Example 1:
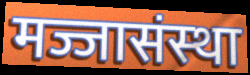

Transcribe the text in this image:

मज्जासंस्था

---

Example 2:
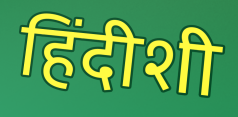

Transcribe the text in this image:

हिंदीशी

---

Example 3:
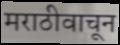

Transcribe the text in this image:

मराठीवाचून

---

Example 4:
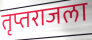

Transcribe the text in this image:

तृप्तराजला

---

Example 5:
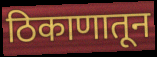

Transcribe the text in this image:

ठिकाणातून